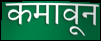
कमावून